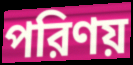
পরিণয়